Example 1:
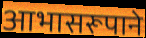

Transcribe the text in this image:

आभासरूपाने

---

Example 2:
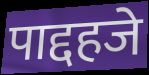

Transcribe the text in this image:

पाद्दहजे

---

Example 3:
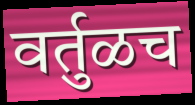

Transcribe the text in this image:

वर्तुळच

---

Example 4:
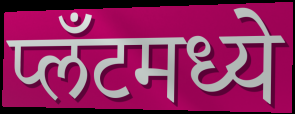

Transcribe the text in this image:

प्लँटमध्ये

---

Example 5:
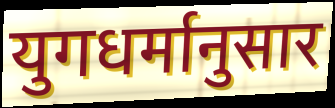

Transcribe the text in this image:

युगधर्मानुसार